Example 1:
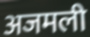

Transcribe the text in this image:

अजमली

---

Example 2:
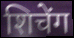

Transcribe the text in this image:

शिचेंग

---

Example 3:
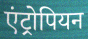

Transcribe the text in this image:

एंट्रोपियन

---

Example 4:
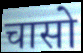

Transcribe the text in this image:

चासो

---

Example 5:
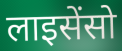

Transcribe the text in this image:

लाइसेंसो